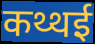
कथ्थई